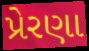
પ્રેરણા